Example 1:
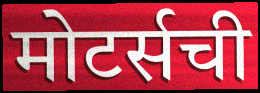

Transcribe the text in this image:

मोटर्सची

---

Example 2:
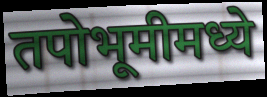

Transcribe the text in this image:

तपोभूमीमध्ये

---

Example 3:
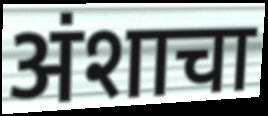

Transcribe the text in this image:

अंशाचा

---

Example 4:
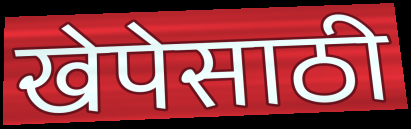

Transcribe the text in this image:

खेपेसाठी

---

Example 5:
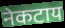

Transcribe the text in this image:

नेकटाय